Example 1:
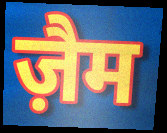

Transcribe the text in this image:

ज़ैम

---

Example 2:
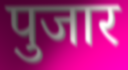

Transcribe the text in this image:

पुजार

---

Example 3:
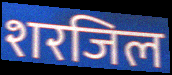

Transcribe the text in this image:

शरजिल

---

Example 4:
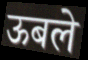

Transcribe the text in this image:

ऊबले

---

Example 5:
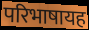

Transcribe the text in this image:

परिभाषायह